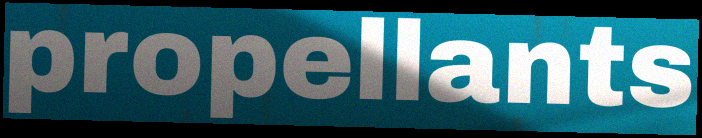
propellants